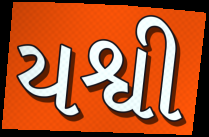
યશ્વી